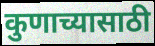
कुणाच्यासाठी